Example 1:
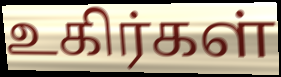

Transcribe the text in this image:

உகிர்கள்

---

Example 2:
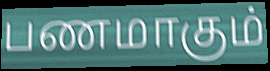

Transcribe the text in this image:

பணமாகும்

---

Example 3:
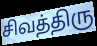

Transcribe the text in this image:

சிவத்திரு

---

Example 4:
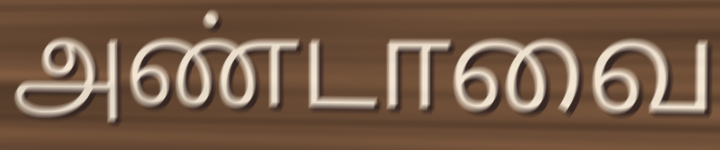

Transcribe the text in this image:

அண்டாவை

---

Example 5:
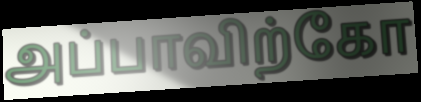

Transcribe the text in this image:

அப்பாவிற்கோ